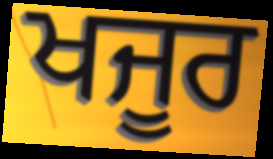
ਖਜੂਰ